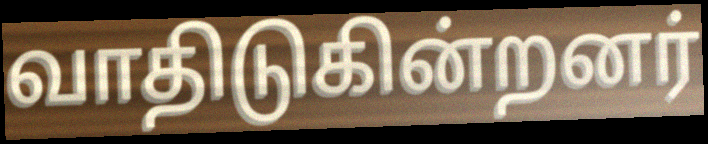
வாதிடுகின்றனர்